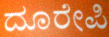
ದೂರೇಪಿ